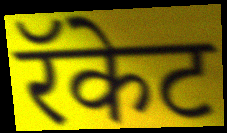
रॅकेट